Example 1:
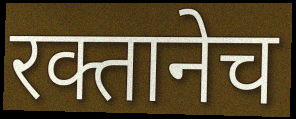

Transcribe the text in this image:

रक्तानेच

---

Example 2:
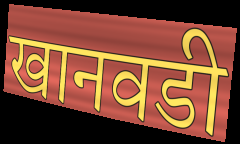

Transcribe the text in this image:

खानवडी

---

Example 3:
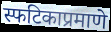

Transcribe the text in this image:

स्फटिकाप्रमाणे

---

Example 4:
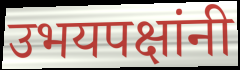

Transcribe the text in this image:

उभयपक्षांनी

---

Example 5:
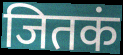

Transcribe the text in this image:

जितकं